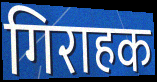
गिराहक